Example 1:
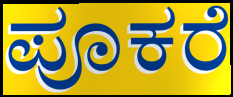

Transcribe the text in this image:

ಪೂಕರೆ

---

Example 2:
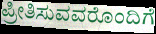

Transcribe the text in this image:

ಪ್ರೀತಿಸುವವರೊಂದಿಗೆ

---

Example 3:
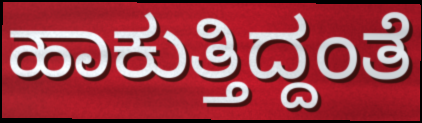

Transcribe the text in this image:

ಹಾಕುತ್ತಿದ್ದಂತೆ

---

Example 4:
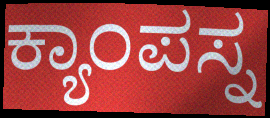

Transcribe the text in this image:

ಕ್ಯಾಂಪಸ್ನ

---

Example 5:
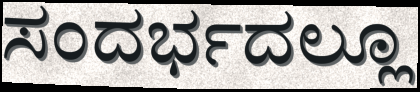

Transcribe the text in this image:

ಸಂದರ್ಭದಲ್ಲೂ